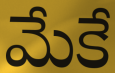
మేకే